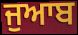
ਜੁਆਬ